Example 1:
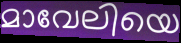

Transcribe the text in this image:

മാവേലിയെ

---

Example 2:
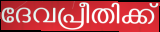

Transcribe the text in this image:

ദേവപ്രീതിക്ക്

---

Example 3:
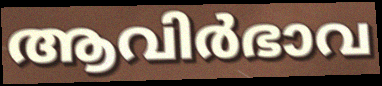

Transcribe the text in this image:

ആവിർഭാവ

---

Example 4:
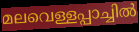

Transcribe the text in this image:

മലവെള്ളപ്പാച്ചിൽ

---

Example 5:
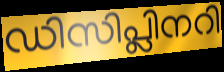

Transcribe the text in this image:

ഡിസിപ്ലിനറി